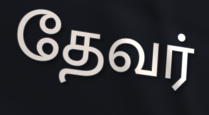
தேவர்